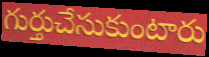
గుర్తుచేసుకుంటారు